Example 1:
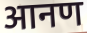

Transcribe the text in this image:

आनण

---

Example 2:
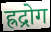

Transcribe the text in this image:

ह्रद्रोग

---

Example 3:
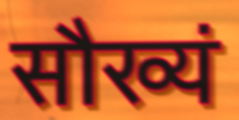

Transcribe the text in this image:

सौख्यं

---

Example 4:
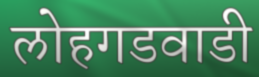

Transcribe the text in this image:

लोहगडवाडी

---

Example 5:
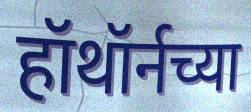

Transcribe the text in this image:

हॉथॉर्नच्या